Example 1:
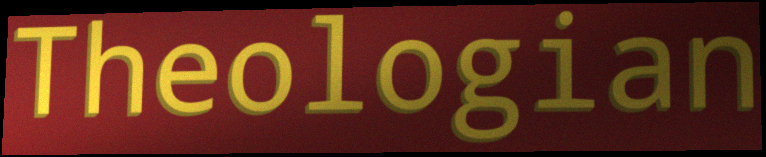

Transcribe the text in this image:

Theologian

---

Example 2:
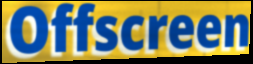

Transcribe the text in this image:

Offscreen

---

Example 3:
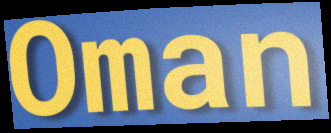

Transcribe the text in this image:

Oman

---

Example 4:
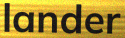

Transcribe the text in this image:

lander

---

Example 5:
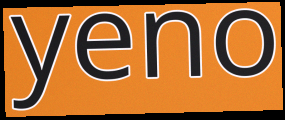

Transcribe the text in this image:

yeno